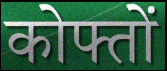
कोफ्तों